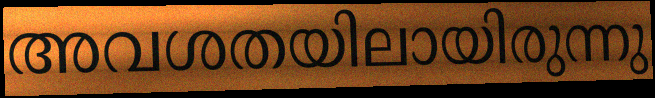
അവശതയിലായിരുന്നു